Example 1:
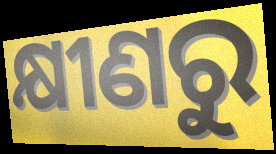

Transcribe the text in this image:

କ୍ଷୀଣରୁ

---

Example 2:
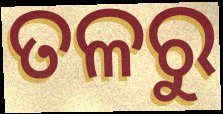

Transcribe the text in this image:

ତଳରୁ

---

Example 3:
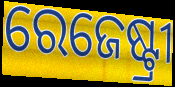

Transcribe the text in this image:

ରେଜେଷ୍ଟ୍ରୀ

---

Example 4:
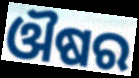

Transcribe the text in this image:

ଔଷର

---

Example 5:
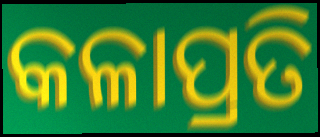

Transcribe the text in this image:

କଳାପ୍ରତି